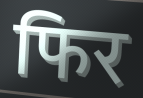
फिर